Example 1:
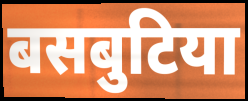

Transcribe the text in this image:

बसबुटिया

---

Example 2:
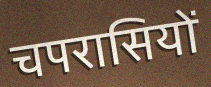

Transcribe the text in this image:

चपरासियों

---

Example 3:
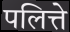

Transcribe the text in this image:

पलित्ते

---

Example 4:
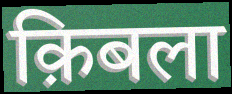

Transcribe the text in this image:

क़िबला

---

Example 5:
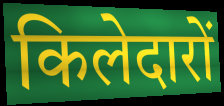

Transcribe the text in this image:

किलेदारों